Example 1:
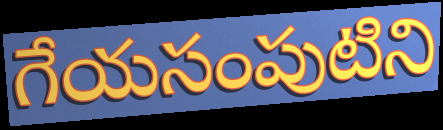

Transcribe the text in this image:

గేయసంపుటిని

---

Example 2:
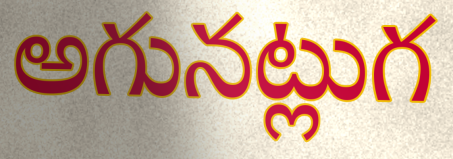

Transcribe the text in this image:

అగునట్లుగ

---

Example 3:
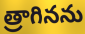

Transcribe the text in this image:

త్రాగినను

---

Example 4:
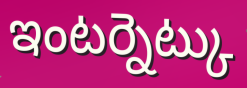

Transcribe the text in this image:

ఇంటర్నెట్కు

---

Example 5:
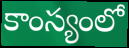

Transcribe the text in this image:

కాంస్యంలో